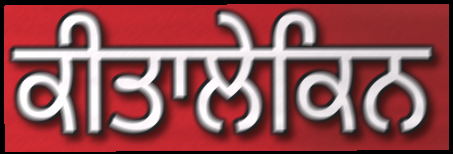
ਕੀਤਾਲੇਕਿਨ